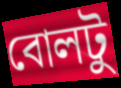
বোলটু